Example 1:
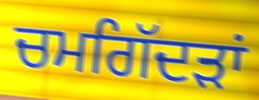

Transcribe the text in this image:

ਚਮਗਿੱਦੜਾਂ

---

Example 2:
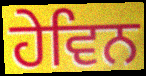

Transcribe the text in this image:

ਹੇਵਿਨ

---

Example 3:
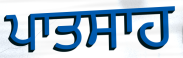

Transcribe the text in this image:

ਪਾਤਸਾਹ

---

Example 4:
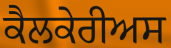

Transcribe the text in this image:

ਕੈਲਕੇਰੀਅਸ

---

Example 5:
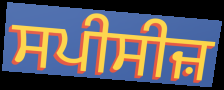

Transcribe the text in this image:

ਸਪੀਸੀਜ਼